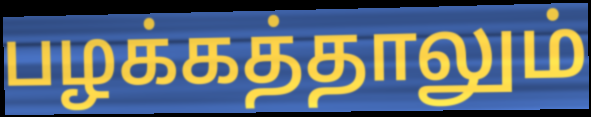
பழக்கத்தாலும்